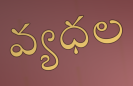
వ్యధల